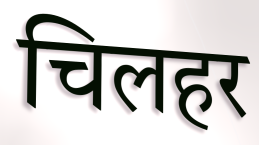
चिलहर